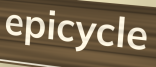
epicycle